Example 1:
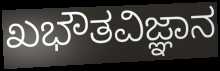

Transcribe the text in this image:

ಖಭೌತವಿಜ್ಞಾನ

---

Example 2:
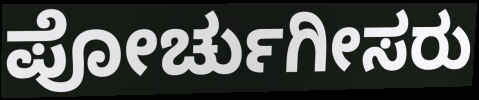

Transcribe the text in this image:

ಪೋರ್ಚುಗೀಸರು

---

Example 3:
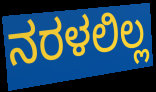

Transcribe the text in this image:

ನರಳಲಿಲ್ಲ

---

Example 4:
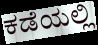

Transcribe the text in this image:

ಕಡೆಯಲ್ಲಿ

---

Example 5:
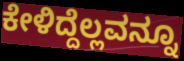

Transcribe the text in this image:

ಕೇಳಿದ್ದೆಲ್ಲವನ್ನೂ